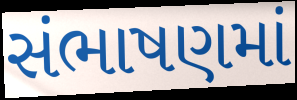
સંભાષણમાં